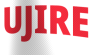
UJIRE